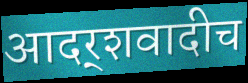
आदर्शवादीच